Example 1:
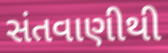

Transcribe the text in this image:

સંતવાણીથી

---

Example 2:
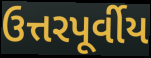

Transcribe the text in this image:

ઉત્તરપૂર્વીય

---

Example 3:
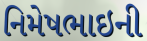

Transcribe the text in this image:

નિમેષભાઇની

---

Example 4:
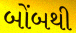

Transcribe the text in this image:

બોંબથી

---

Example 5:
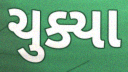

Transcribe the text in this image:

ચુક્યા